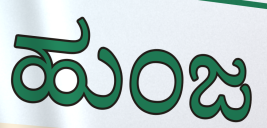
ಹುಂಜ